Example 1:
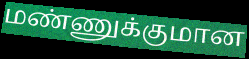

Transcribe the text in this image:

மண்ணுக்குமான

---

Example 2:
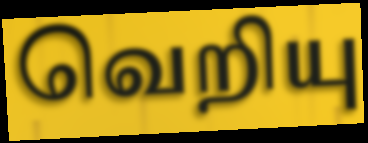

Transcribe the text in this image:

வெறியு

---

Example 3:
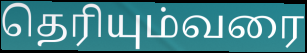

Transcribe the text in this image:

தெரியும்வரை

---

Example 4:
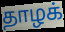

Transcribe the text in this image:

தாழக்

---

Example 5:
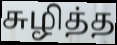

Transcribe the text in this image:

சுழித்த